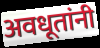
अवधूतांनी